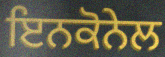
ਇਨਕੋਨੇਲ